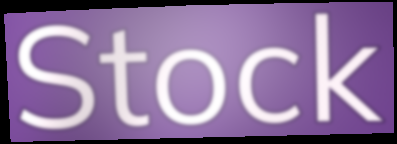
Stock